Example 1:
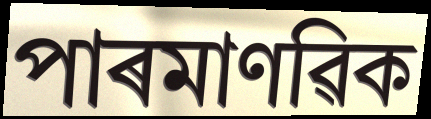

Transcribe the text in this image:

পাৰমাণৱিক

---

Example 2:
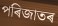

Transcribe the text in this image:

পৰিজাতৰ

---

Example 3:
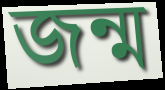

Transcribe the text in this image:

জন্ম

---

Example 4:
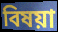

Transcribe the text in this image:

বিষয়া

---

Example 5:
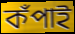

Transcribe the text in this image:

কঁপাই